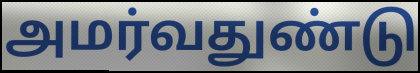
அமர்வதுண்டு